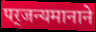
पर्जन्यमानाने